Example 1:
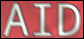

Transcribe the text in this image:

AID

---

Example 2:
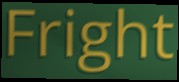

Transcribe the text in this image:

Fright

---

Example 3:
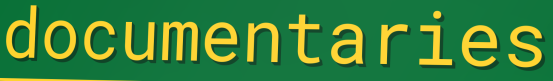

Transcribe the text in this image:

documentaries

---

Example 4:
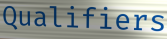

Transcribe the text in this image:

Qualifiers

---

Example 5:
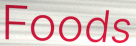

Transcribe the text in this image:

Foods